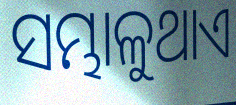
ସମ୍ଭାଳୁଥାଏ